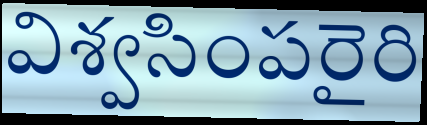
విశ్వసింపరైరి